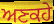
ਅਣਕਹੇ